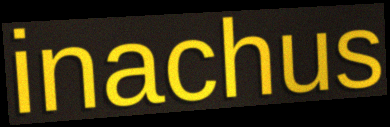
inachus